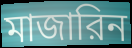
মাজারিন